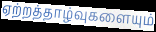
ஏற்றத்தாழ்வுகளையும்